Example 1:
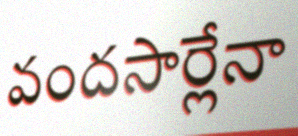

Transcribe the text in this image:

వందసార్లేనా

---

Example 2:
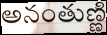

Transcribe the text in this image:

అనంతుణ్ణి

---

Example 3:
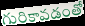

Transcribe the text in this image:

గురికావడంతో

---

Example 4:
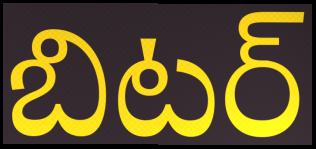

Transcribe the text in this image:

బిటర్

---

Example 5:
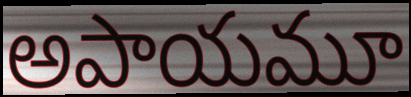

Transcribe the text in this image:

అపాయమూ